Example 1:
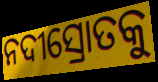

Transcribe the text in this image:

ନଦୀସ୍ରୋତକୁ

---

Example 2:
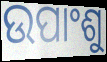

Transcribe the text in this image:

ଉପାଂଶୁ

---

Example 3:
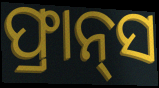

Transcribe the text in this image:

ଫ୍ରାନ୍‍ସ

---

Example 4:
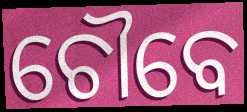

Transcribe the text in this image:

ଚୌବେ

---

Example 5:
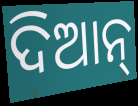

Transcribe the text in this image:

ଦିଆନ୍